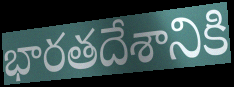
భారతదేశానికి